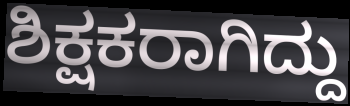
ಶಿಕ್ಷಕರಾಗಿದ್ದು